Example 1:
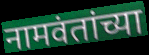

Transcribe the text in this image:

नामवंतांच्या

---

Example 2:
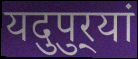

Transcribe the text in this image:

यदुपुर्यां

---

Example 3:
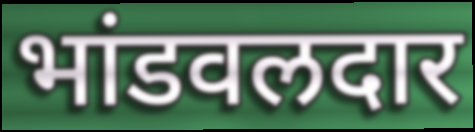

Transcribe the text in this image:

भांडवलदार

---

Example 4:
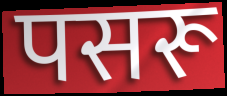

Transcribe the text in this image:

पसरू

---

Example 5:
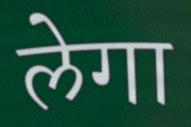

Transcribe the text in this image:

लेगा